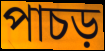
পাচড়